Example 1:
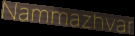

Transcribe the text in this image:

Nammazhvar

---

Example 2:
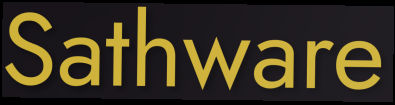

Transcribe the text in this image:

Sathware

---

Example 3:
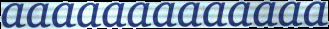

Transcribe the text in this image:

aaaaaaaaaaaaa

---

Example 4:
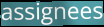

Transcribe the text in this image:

assignees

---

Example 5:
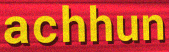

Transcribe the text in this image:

achhun